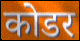
कोडर